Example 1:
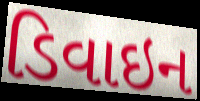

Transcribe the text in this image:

ડિવાઇન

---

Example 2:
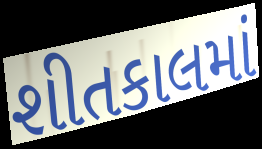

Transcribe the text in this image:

શીતકાલમાં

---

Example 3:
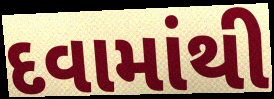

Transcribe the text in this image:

દવામાંથી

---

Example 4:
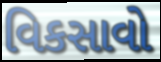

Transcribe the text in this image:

વિકસાવો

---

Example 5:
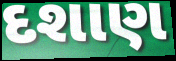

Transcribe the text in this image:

દશાણ